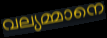
വല്യമ്മാനെ